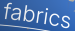
fabrics